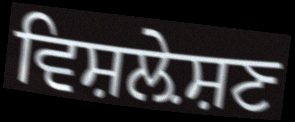
ਵਿਸ਼ਲ਼ੇਸ਼ਣ